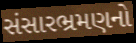
સંસારભ્રમણનો